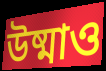
উষ্মাও